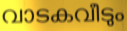
വാടകവീടും